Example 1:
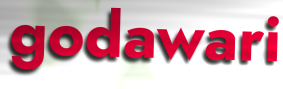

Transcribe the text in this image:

godawari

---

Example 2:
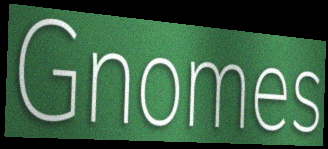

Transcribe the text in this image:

Gnomes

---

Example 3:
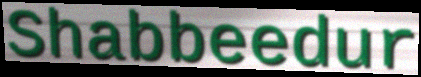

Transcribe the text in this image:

Shabbeedur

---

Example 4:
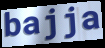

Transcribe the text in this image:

bajja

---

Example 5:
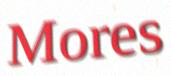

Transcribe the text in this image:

Mores